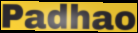
Padhao